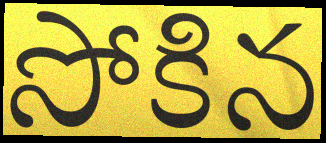
సోకిన